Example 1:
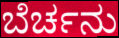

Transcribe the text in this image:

ಬೆರ್ಚನು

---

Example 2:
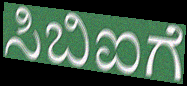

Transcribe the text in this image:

ಸಿಬಿಐಗೆ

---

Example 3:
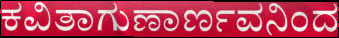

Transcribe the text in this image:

ಕವಿತಾಗುಣಾರ್ಣವನಿಂದ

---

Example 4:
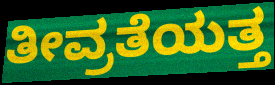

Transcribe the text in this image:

ತೀವ್ರತೆಯತ್ತ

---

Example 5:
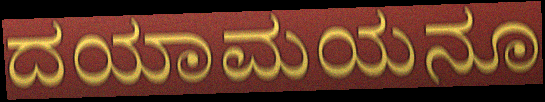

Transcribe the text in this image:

ದಯಾಮಯನೂ